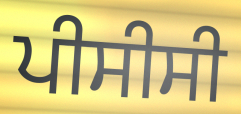
ਪੀਸੀਸੀ